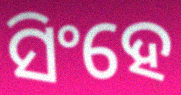
ସିଂହେ